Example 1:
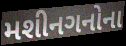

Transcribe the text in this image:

મશીનગનોના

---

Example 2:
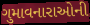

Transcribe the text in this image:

ગુમાવનારાઓની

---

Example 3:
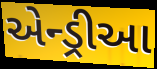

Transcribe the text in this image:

એન્ડ્રીઆ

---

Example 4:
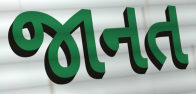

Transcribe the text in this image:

જાનત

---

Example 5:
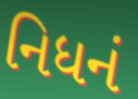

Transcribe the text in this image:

નિધનં